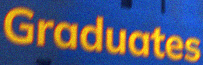
Graduates